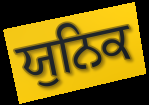
ਯੁਨਿਕ